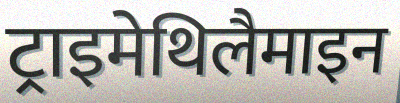
ट्राइमेथिलैमाइन